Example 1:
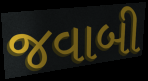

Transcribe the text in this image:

જવાબી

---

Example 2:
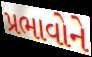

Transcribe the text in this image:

પ્રભાવોને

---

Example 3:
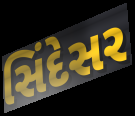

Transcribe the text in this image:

સિંદેસર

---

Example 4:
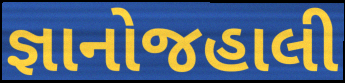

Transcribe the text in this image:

જ્ઞાનોજહાલી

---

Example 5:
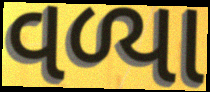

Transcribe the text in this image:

વળ્યા